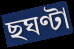
ছঘণ্টা